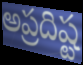
అప్రదిష్ట